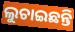
ଲୁଚାଇଛନ୍ତି